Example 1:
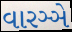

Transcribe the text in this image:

વારઞ્ઞે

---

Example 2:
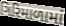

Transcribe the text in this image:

ગિરિમાળામાં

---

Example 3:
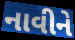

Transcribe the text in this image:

નાવીને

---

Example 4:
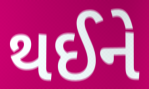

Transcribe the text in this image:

થઈને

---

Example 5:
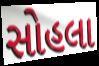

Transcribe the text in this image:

સોહલા